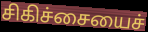
சிகிச்சையைச்